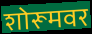
शोरूमवर